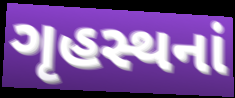
ગૃહસ્થનાં